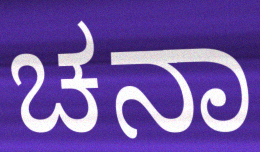
ಚನಾ